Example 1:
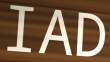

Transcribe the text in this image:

IAD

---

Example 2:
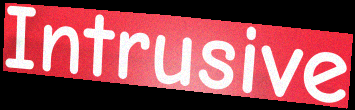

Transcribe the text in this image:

Intrusive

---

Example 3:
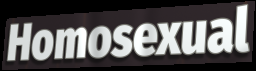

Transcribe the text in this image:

Homosexual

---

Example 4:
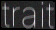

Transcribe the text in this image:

trait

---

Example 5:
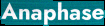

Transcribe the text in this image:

Anaphase